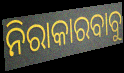
ନିରାକାରବାବୁ